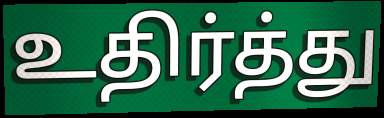
உதிர்த்து